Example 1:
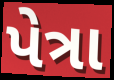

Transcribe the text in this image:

પેત્રા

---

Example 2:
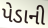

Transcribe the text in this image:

પેડાની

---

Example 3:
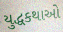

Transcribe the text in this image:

યુદ્ધકથાઓ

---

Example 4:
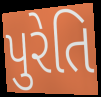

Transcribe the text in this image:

પુરેતિ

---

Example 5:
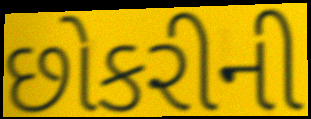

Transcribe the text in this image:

છોકરીની